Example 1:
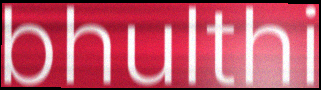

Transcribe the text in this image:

bhulthi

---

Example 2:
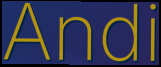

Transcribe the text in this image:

Andi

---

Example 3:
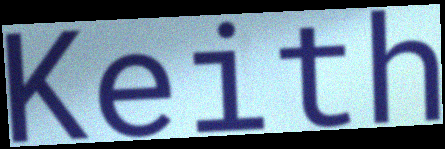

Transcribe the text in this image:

Keith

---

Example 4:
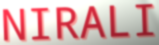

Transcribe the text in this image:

NIRALI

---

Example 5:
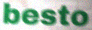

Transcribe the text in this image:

besto